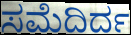
ಸಮೆದಿರ್ದ